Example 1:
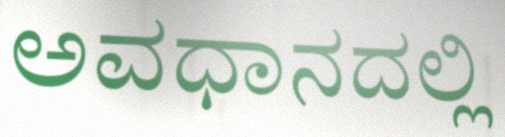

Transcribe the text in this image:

ಅವಧಾನದಲ್ಲಿ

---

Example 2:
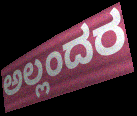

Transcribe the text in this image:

ಅಲ್ಲಂದರ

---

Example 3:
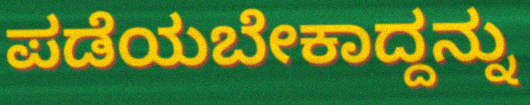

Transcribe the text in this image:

ಪಡೆಯಬೇಕಾದ್ದನ್ನು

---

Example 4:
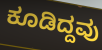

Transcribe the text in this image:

ಕೂಡಿದ್ದವು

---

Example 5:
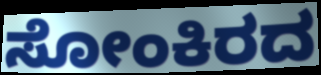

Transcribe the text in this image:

ಸೋಂಕಿರದ